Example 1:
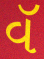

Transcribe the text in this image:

વૅ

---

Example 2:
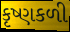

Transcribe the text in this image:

કૃષ્ણકળી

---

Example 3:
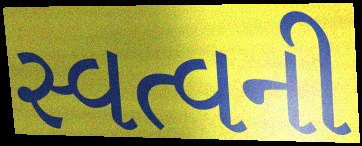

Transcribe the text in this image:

સ્વત્વની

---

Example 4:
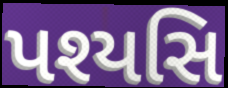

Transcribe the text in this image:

પશ્યસિ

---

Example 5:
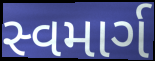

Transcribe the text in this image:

સ્વમાર્ગ